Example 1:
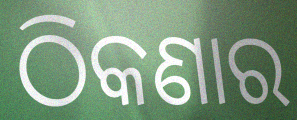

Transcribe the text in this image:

ଠିକଣାର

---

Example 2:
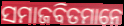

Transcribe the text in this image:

ସମାଜବିତମାନେ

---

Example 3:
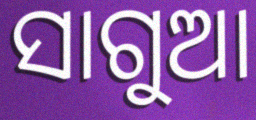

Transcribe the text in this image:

ସାଗୁଆ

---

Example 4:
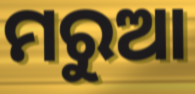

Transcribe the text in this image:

ମରୁଆ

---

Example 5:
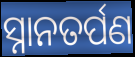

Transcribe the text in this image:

ସ୍ନାନତର୍ପଣ